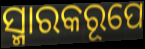
ସ୍ମାରକରୂପେ